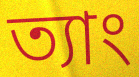
ত্যাং